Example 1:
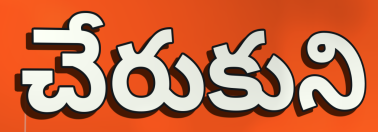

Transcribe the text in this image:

చేరుకుని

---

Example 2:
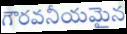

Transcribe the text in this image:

గౌరవనీయమైన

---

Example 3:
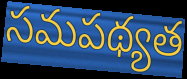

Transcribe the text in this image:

సమపథ్యత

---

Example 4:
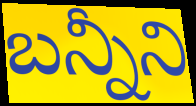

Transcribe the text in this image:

బన్నీని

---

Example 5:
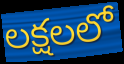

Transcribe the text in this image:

లక్షలలో